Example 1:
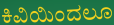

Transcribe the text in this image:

ಕಿವಿಯಿಂದಲೂ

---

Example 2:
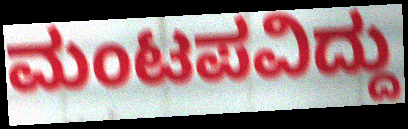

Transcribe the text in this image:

ಮಂಟಪವಿದ್ದು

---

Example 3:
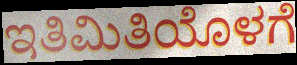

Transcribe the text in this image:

ಇತಿಮಿತಿಯೊಳಗೆ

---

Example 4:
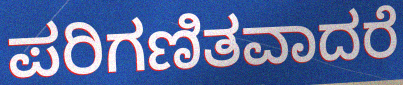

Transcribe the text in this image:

ಪರಿಗಣಿತವಾದರೆ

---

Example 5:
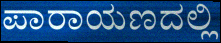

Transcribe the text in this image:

ಪಾರಾಯಣದಲ್ಲಿ